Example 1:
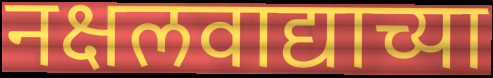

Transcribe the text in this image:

नक्षलवाद्याच्या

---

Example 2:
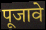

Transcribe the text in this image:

पूजावे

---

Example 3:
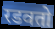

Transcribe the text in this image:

रडवतो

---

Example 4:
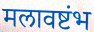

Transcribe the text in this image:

मलावष्टंभ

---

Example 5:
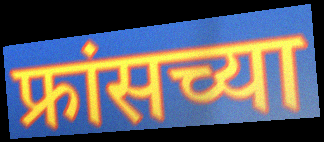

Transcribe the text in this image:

फ्रांसच्या